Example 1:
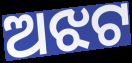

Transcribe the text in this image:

ଅଝଟ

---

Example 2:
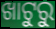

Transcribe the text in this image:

ଖାଟୁରୁ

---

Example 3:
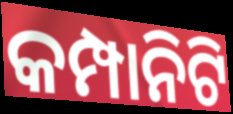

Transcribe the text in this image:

କମ୍ପାନିଟି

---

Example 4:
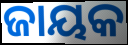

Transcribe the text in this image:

ଜାୟକ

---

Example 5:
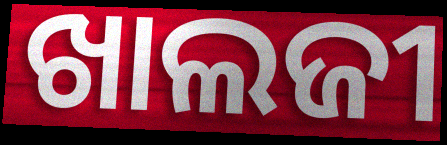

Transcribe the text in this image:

ଖାଲଜୀ